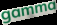
gamma